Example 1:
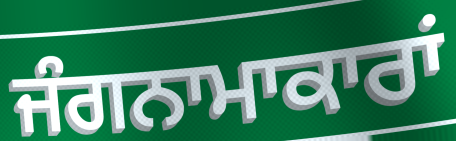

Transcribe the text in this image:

ਜੰਗਨਾਮਾਕਾਰਾਂ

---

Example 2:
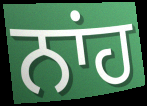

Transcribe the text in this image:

ਨਾਂਹ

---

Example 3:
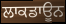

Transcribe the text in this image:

ਲਾਕਡਾਊਨ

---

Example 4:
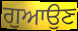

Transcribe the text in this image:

ਗੁਆਉਣ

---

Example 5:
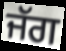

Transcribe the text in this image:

ਜੱਗ